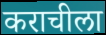
कराचीला